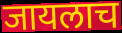
जायलाच